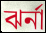
ঝর্না